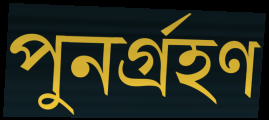
পুনর্গ্রহণ